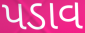
પડાવ